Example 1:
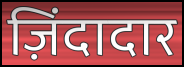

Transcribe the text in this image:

ज़िंदादार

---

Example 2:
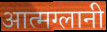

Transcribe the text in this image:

आत्मग्लानी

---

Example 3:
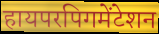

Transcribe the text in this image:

हायपरपिगमेंटेशन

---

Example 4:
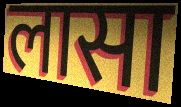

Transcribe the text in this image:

लासा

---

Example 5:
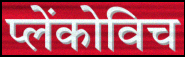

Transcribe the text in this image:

प्लेंकोविच